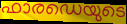
ഫാരഡെയുടെ